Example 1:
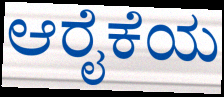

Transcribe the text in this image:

ಆರೈಕೆಯ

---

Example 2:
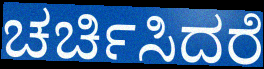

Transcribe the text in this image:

ಚರ್ಚಿಸಿದರೆ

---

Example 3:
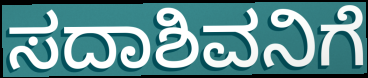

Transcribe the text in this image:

ಸದಾಶಿವನಿಗೆ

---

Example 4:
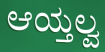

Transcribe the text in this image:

ಆಯ್ತಲ್ವ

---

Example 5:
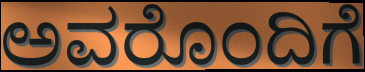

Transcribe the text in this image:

ಅವರೊಂದಿಗೆ